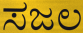
ಸಜಲ